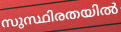
സുസ്ഥിരതയിൽ